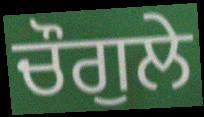
ਚੌਗੁਲੇ